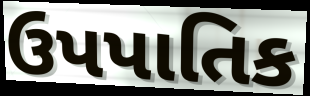
ઉપપાતિક